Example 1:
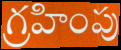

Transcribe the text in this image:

గ్రహింపు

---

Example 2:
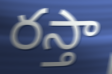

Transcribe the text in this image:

రస్తా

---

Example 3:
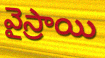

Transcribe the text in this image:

వైస్రాయి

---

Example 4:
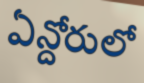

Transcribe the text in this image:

ఏన్దోరులో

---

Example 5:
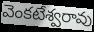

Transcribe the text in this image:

వెంకటేశ్వరావు